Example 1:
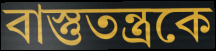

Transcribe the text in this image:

বাস্তুতন্ত্রকে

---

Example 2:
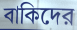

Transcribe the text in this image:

বাকিদের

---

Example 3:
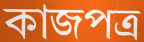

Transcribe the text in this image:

কাজপত্র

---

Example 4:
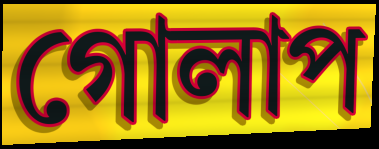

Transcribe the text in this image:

গোলাপ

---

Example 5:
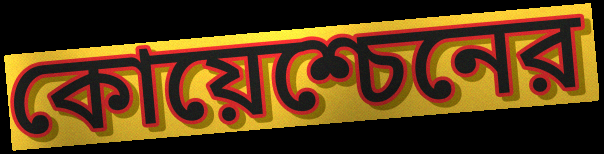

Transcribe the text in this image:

কোয়েশ্চেনের